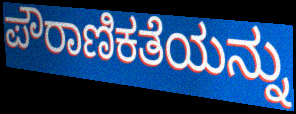
ಪೌರಾಣಿಕತೆಯನ್ನು